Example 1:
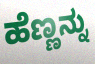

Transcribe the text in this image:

ಹೆಣ್ಣನ್ನು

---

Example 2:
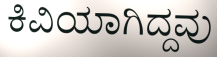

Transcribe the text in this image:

ಕಿವಿಯಾಗಿದ್ದವು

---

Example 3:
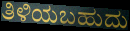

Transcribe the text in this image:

ತಿಳಿಯಬಹುದು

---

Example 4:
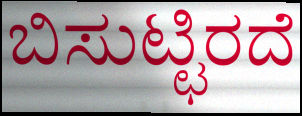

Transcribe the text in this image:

ಬಿಸುಟ್ಟಿರದೆ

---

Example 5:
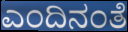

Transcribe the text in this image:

ಎಂದಿನಂತೆ